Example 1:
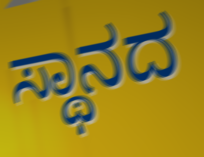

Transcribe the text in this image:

ಸ್ಥಾನದ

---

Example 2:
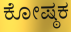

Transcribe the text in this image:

ಕೋಷ್ಠಕ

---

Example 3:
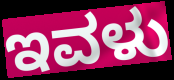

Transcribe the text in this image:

ಇವಳು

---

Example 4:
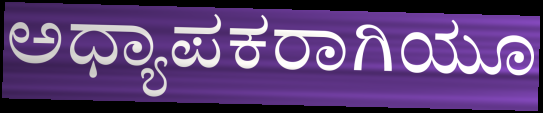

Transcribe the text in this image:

ಅಧ್ಯಾಪಕರಾಗಿಯೂ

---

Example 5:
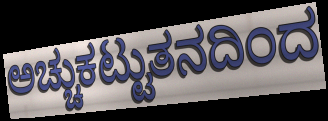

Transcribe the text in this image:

ಅಚ್ಚುಕಟ್ಟುತನದಿಂದ